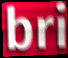
bri